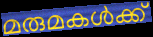
മരുമകൾക്ക്